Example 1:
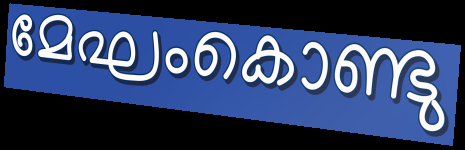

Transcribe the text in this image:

മേഘംകൊണ്ടു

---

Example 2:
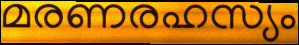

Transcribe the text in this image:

മരണരഹസ്യം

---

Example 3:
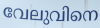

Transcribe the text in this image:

വേലുവിനെ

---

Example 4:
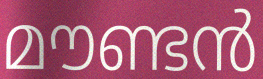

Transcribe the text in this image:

മൗണ്ടൻ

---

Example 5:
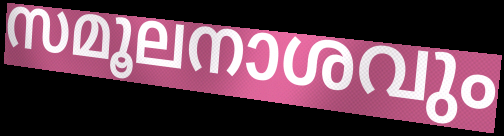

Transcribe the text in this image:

സമൂലനാശവും